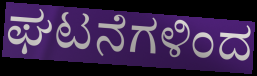
ಘಟನೆಗಳಿಂದ